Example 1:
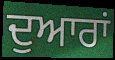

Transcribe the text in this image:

ਦੁਆਰਾਂ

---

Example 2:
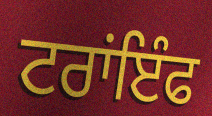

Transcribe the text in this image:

ਟਰਾਂਇੰਫ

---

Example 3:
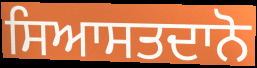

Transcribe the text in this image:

ਸਿਆਸਤਦਾਨੋ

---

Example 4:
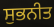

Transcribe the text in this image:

ਸੁਭਨੀਤ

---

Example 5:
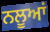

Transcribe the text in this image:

ਨਲੂਆਂ